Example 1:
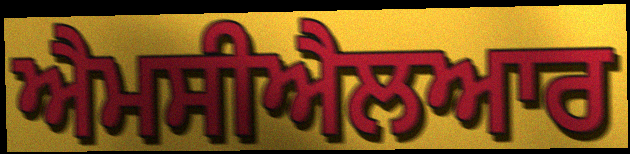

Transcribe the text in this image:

ਐਮਸੀਐਲਆਰ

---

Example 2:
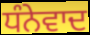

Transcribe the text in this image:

ਧੰਨੇਵਾਦ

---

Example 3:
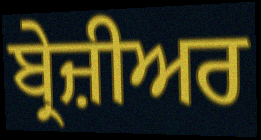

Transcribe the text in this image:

ਬ੍ਰੇਜ਼ੀਅਰ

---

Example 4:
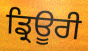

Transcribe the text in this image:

ਡ੍ਰਿਊਰੀ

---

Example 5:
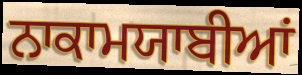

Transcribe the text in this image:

ਨਾਕਾਮਯਾਬੀਆਂ